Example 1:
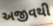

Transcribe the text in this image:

અજીવથી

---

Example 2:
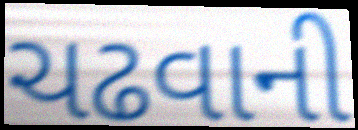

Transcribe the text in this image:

ચઢવાની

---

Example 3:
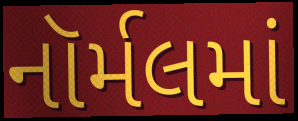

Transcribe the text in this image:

નૉર્મલમાં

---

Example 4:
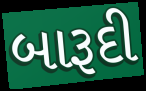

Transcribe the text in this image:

બારૂદી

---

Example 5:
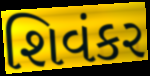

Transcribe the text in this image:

શિવંકર